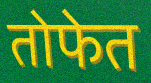
तोफेत